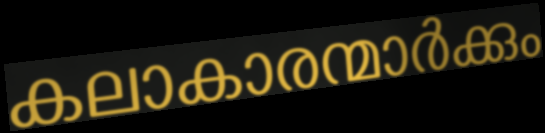
കലാകാരന്മാർക്കും